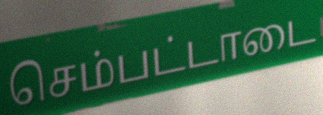
செம்பட்டாடை